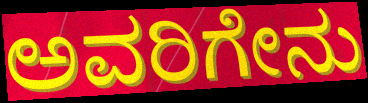
ಅವರಿಗೇನು